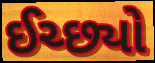
ઈચ્છ્યો